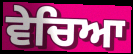
ਵੇਚਿਆ